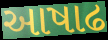
આષાઢ